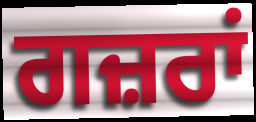
ਗਜ਼ਰਾਂ